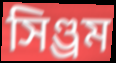
সিণ্ড্ৰম